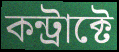
কন্ট্রাক্টে